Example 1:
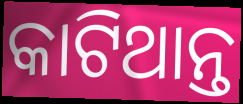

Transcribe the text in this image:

କାଟିଥାନ୍ତ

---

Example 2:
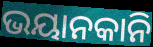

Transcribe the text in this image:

ଭୟାନକାନି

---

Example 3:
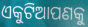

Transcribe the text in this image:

ଏକୁଟିଆପଣକୁ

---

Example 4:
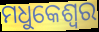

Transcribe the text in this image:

ମଧୁକେଶ୍ୱର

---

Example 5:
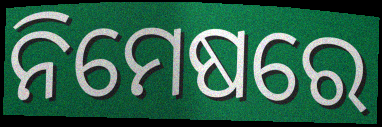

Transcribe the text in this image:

ନିମେଷରେ